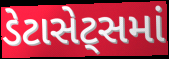
ડેટાસેટ્સમાં